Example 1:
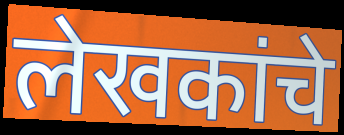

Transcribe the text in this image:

लेखकांचे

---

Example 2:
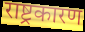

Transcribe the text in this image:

राष्ट्रकारण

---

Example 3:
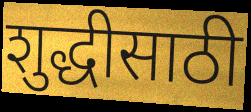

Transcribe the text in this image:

शुद्धीसाठी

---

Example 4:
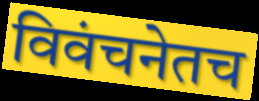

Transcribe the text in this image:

विवंचनेतच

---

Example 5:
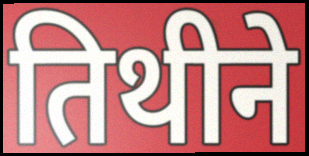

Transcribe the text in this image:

तिथीने